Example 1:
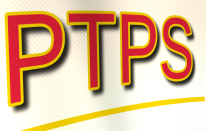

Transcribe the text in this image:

PTPS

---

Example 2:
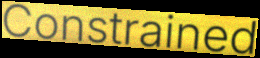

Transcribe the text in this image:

Constrained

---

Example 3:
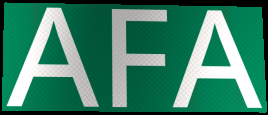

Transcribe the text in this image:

AFA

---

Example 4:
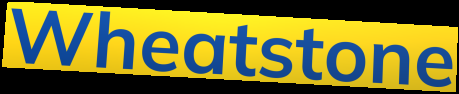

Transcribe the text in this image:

Wheatstone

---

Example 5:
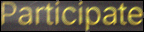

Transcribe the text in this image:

Participate